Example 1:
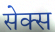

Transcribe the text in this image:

सेक्स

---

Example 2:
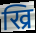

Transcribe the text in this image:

ख्रि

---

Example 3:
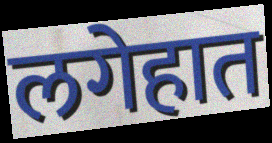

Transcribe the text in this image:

लगेहात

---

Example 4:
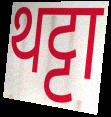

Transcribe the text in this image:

थट्टा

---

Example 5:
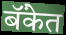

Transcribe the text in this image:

बॅंकेत